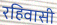
रहिवासी